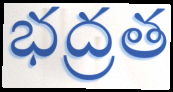
భద్రత